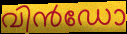
വിൻഡോ